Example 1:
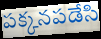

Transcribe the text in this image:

పక్కనపడేసి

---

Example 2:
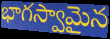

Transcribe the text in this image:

భాగస్వామైన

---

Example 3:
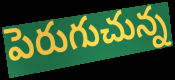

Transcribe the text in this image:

పెరుగుచున్న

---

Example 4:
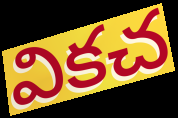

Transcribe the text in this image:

వికచ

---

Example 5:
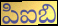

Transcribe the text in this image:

పిఐబి